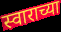
स्वाराच्या